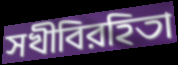
সখীবিরহিতা